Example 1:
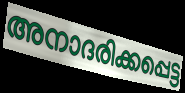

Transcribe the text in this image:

അനാദരിക്കപ്പെട്ട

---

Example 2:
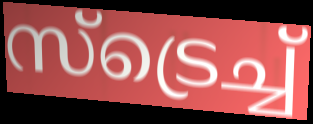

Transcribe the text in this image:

സ്ട്രെച്ച്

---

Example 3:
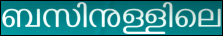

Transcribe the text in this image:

ബസിനുള്ളിലെ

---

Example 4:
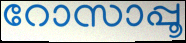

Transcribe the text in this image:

റോസാപ്പൂ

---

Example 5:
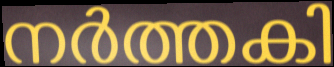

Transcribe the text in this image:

നർത്തകി